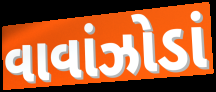
વાવાંઝોડાં